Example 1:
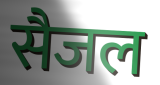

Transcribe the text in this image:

सैजल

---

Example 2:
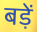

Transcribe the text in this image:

बड़ें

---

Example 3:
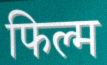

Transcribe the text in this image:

फिल्म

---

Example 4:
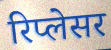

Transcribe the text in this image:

रिप्लेसर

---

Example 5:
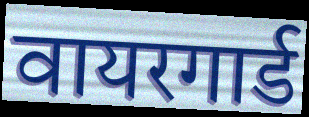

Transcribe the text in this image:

वायरगार्ड